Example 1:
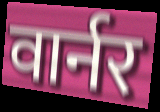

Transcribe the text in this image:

वार्नर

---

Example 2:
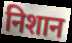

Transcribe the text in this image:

निशान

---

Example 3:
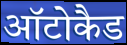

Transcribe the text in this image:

ऑटोकैड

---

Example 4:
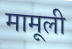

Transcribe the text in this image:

मामूली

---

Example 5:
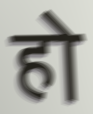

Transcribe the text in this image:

हो